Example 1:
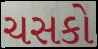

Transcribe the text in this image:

ચસકો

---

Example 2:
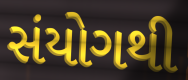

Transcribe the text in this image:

સંયોગથી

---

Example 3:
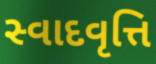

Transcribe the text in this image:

સ્વાદવૃત્તિ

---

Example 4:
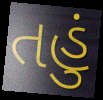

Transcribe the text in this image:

તહું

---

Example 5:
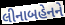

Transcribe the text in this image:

લીનાબહેનને